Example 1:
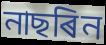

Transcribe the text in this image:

নাছৰিন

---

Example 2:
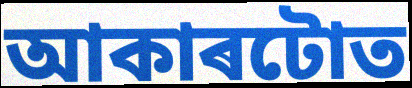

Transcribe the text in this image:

আকাৰটোত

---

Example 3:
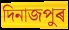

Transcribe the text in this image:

দিনাজপুৰ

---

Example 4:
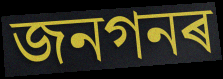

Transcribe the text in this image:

জনগনৰ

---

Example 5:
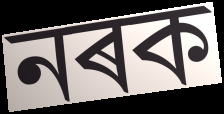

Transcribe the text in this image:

নৰক